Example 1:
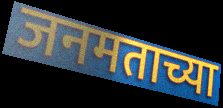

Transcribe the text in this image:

जनमताच्या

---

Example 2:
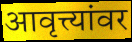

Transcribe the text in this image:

आवृत्त्यांवर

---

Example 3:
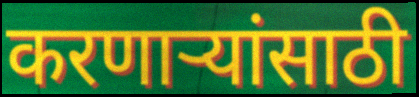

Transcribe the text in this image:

करणार्‍यांसाठी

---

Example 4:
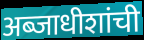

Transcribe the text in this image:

अब्जाधीशांची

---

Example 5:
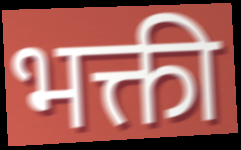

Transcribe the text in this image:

भक्ती